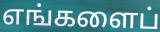
எங்களைப்